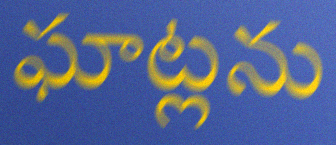
ఘాట్లను